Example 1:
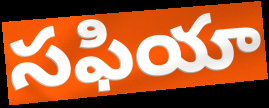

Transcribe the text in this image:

సఫియా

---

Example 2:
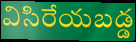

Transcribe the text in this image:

విసిరేయబడ్డ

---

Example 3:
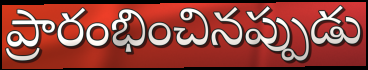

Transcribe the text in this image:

ప్రారంభించినప్పుడు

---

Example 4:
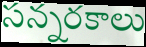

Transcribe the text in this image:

సన్నరకాలు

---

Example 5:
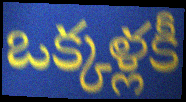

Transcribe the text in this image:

ఒక్కళ్లకీ